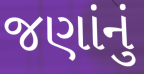
જણાંનું